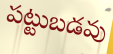
పట్టుబడవు